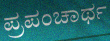
ಪ್ರಪಂಚಾರ್ಥ